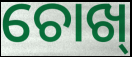
ଚୋଖ୍